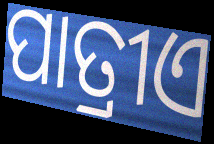
ପାତ୍ରୀଏ